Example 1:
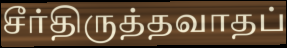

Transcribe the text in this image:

சீர்திருத்தவாதப்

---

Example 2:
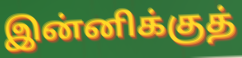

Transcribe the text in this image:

இன்னிக்குத்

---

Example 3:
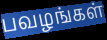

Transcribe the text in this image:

பவழங்கள்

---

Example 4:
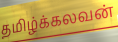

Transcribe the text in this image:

தமிழ்க்கலவன்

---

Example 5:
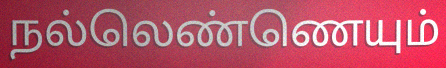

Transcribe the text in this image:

நல்லெண்ணெயும்